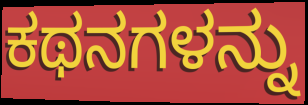
ಕಥನಗಳನ್ನು